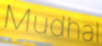
Mudhal